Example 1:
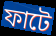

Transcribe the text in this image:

ফাটে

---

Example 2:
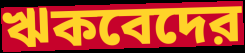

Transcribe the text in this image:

ঋকবেদের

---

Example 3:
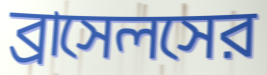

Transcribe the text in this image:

ব্রাসেলসের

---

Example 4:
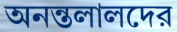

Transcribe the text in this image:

অনন্তলালদের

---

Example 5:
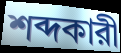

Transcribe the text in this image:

শব্দকারী